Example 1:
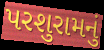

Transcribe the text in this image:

પરશુરામનું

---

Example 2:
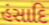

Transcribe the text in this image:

હંસાદિ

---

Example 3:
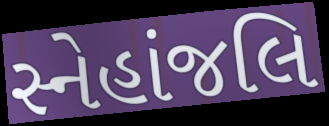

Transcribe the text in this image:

સ્નેહાંજલિ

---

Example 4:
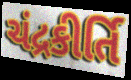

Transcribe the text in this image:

ચંદ્રકીર્તિ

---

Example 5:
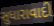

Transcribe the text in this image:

સુધારાવાદી